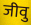
जीवु